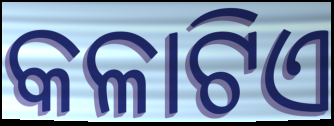
କଳାଟିଏ